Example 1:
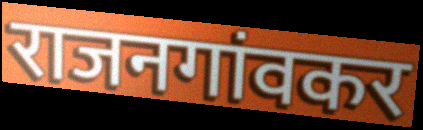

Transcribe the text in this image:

राजनगांवकर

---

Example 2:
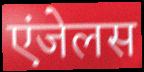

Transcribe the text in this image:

एंजेलस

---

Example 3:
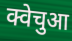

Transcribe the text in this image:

क्वेचुआ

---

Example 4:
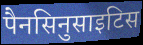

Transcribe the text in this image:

पैनसिनुसाइटिस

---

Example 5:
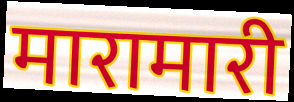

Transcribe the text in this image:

मारामारी